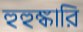
হুহুঙ্কারি